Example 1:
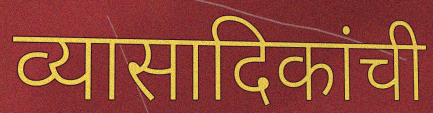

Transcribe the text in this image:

व्यासादिकांची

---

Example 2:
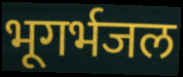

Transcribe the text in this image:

भूगर्भजल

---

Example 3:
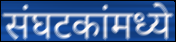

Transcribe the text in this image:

संघटकांमध्ये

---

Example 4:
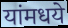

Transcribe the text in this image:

यांमधये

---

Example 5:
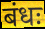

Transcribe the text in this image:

बंधः